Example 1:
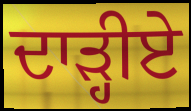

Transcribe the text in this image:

ਦਾੜ੍ਹੀਏ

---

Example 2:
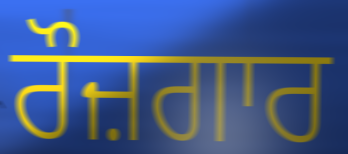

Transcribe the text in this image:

ਰੌਜ਼ਗਾਰ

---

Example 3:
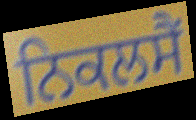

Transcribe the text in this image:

ਨਿਕਲਸੈਂ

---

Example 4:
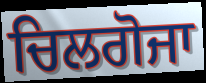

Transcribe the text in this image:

ਚਿਲਗੋਜਾ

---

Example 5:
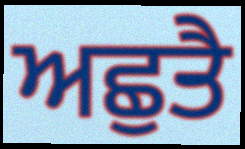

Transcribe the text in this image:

ਅਛੁਤੈ